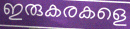
ഇരുകരകളെ